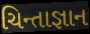
ચિન્તાજ્ઞાન